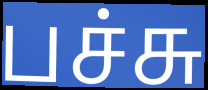
பச்சு